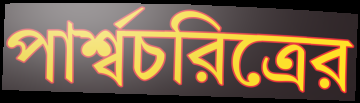
পার্শ্বচরিত্রের